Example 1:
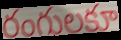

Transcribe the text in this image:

రంగులకూ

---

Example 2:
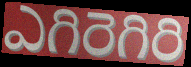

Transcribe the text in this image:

ఎగిరెగిరి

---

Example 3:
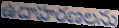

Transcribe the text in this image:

ఉదాహరణలను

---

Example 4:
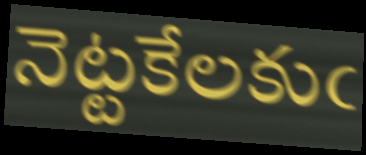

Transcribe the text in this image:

నెట్టకేలకుఁ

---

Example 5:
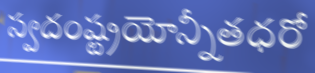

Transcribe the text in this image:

స్వదంష్ట్రయోన్నీతధరో